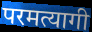
परमत्यागी